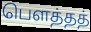
பௌத்தத்